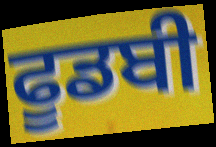
ਫੂਡਬੀ